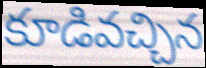
కూడివచ్చిన